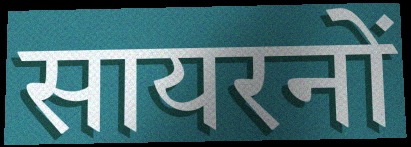
सायरनों